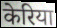
केरिया